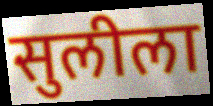
सुलीला